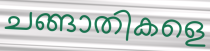
ചങ്ങാതികളെ